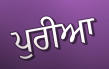
ਪੁਰੀਆ